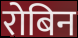
रोबिन